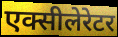
एक्सीलेरेटर